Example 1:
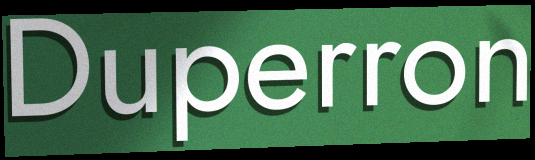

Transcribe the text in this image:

Duperron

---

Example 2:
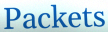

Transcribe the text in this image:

Packets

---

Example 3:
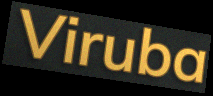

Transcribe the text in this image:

Viruba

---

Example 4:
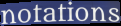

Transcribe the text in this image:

notations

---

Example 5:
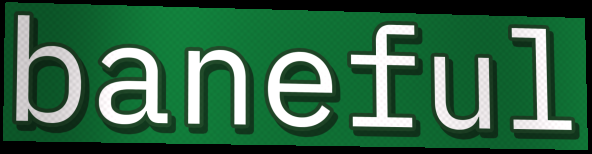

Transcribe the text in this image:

baneful